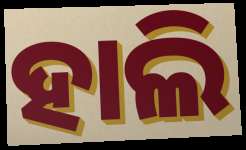
ହାଲି